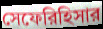
সেফেরিহিসার